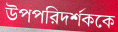
উপপরিদর্শককে